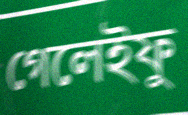
গেলেইফু